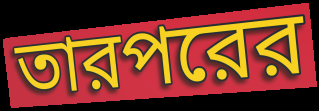
তারপরের